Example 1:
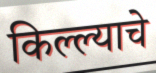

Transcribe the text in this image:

किल्ल्याचे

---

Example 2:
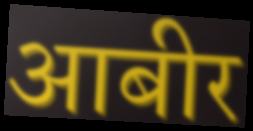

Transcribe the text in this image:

आबीर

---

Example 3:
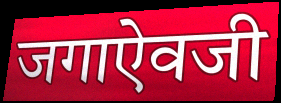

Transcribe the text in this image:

जगाऐवजी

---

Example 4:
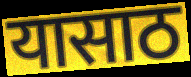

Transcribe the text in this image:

यासाठ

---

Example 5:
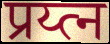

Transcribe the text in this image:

प्रय्त्न